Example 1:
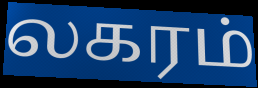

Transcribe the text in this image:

லகரம்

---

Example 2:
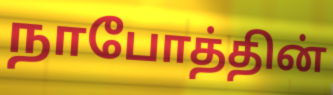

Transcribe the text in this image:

நாபோத்தின்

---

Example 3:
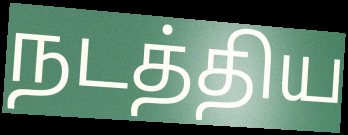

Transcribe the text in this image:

நடத்திய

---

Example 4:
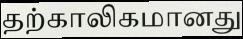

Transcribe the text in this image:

தற்காலிகமானது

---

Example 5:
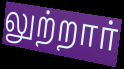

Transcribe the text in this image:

லுற்றார்